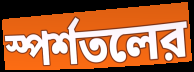
স্পর্শতলের